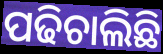
ପଢିଚାଲିଛି